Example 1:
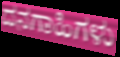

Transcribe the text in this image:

ದನಗಾಹಿಗಳು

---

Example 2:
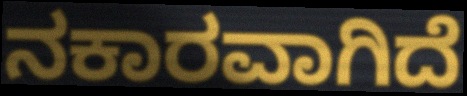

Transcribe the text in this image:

ನಕಾರವಾಗಿದೆ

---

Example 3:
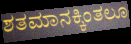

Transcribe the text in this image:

ಶತಮಾನಕ್ಕಿಂತಲೂ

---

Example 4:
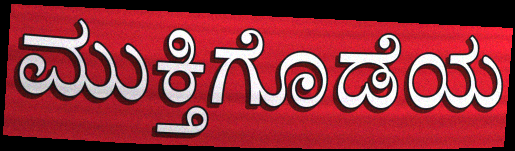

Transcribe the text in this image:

ಮುಕ್ತಿಗೊಡೆಯ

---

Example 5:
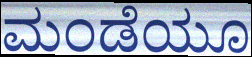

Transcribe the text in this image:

ಮಂಡೆಯೂ